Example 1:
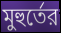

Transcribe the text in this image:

মুহুর্তের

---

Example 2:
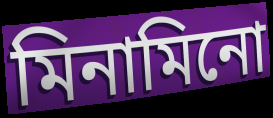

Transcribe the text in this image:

মিনামিনো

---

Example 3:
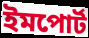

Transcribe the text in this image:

ইমপোর্ট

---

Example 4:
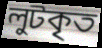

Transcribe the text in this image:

লুটকৃত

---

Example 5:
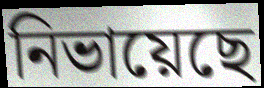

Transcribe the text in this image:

নিভায়েছে